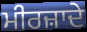
ਮੀਰਜ਼ਾਦੇ